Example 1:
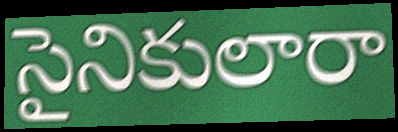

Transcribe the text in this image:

సైనికులారా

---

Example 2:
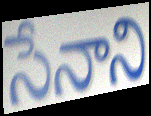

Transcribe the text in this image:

సేనాని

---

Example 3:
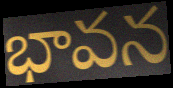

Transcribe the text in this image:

భావన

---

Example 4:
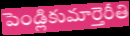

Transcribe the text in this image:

పెండ్లికుమార్తెరీతి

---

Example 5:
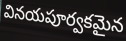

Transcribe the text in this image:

వినయపూర్వకమైన